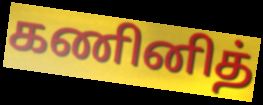
கணினித்